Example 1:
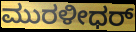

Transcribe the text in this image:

ಮುರಳೀಧರ್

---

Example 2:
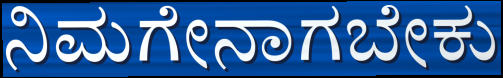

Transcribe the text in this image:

ನಿಮಗೇನಾಗಬೇಕು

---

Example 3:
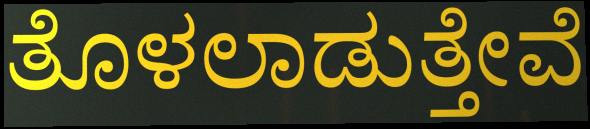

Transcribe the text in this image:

ತೊಳಲಾಡುತ್ತೇವೆ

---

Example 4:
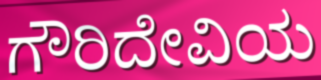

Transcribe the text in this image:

ಗೌರಿದೇವಿಯ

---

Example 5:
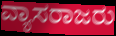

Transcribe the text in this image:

ವ್ಯಾಸರಾಜರು